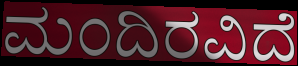
ಮಂದಿರವಿದೆ